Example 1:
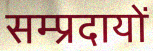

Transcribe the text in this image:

सम्प्रदायों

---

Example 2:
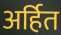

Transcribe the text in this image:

अर्हित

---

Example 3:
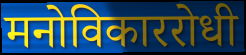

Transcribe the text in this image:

मनोविकाररोधी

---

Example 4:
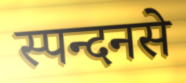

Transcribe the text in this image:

स्पन्दनसे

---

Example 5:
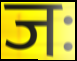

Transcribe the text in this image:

जः